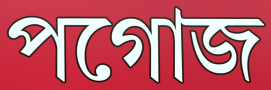
পগোজ